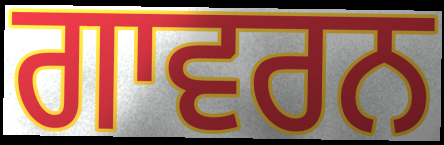
ਗਾਵਰਨ